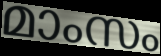
മാംസം